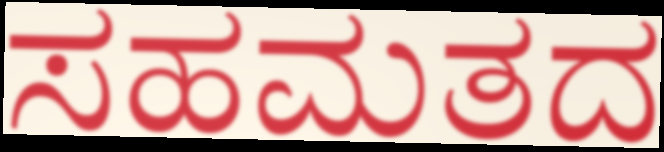
ಸಹಮತದ